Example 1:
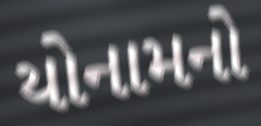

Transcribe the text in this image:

યોનામનો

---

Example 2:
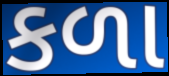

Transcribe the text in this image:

કળા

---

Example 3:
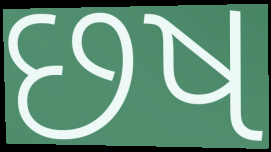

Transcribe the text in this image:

છષ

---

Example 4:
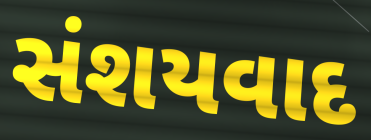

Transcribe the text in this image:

સંશયવાદ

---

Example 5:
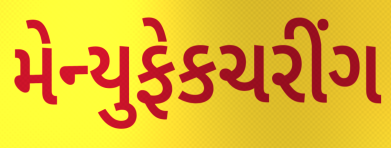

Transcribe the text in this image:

મેન્યુફેકચરીંગ